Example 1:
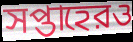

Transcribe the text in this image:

সপ্তাহেরও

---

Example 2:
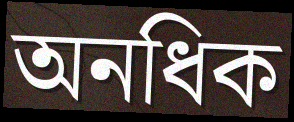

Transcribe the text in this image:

অনধিক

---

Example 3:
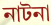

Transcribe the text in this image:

নাটনা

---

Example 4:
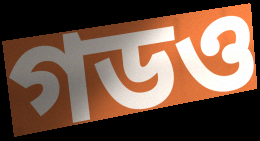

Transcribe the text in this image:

গডও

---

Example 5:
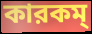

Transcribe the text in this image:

কারকম্